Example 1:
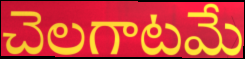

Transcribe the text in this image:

చెలగాటమే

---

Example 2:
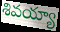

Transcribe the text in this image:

శివయ్యా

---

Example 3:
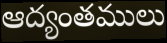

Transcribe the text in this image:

ఆద్యంతములు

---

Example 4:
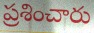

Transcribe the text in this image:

ప్రశించారు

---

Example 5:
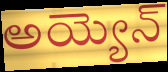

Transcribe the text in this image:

అయ్యెన్